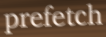
prefetch